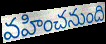
వహించనుంది